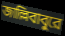
জাল্লিবাবুৱে